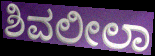
ಶಿವಲೀಲಾ